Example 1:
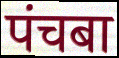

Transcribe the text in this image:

पंचबा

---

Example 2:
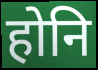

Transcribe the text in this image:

होनि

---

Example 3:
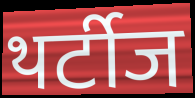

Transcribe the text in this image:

थर्टीज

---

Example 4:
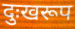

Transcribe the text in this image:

दुःखरूप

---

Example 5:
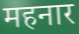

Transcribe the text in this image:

महनार